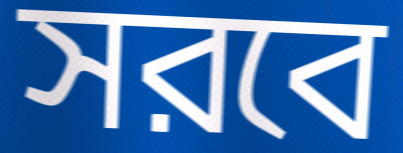
সরবে